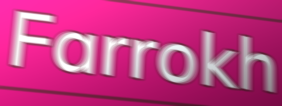
Farrokh